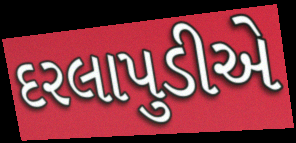
દરલાપુડીએ